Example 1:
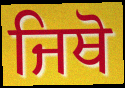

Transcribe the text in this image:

ਜਿਥੋ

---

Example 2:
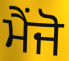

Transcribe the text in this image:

ਮੈਂਜੋ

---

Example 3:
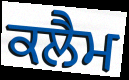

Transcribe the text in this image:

ਕਲੈਮ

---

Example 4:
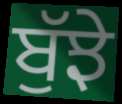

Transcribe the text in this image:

ਬੁੱਝੇ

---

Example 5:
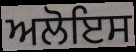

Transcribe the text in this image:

ਅਲੋਇਸ